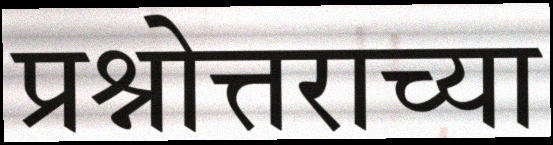
प्रश्नोत्तराच्या